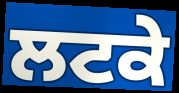
ਲਟਕੇ